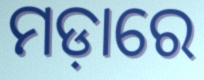
ମଡ଼ାରେ